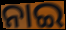
ନାଇ